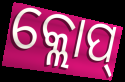
କ୍ଲୋପ୍